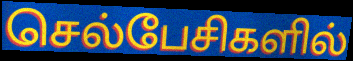
செல்பேசிகளில்